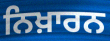
ਨਿਖ਼ਾਰਨ